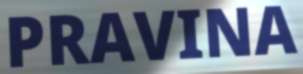
PRAVINA